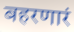
बहरणारं